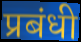
प्रबंधी